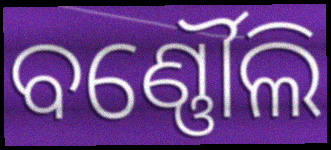
ବର୍ଣ୍ଣୌଲି